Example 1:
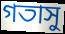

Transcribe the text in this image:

গতাসু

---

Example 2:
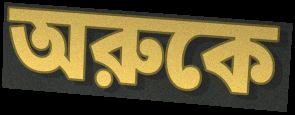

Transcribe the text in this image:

অরুকে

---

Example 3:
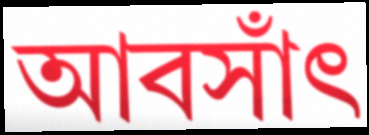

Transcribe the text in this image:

আবসাঁৎ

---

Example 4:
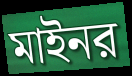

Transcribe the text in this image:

মাইনর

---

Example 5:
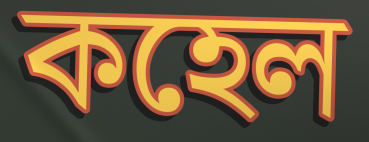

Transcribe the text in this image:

কহেল